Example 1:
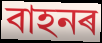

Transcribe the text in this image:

বাহনৰ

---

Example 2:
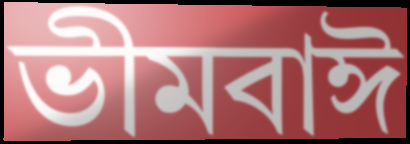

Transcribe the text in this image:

ভীমবাঈ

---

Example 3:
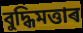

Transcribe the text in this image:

বুদ্ধিমত্তাৰ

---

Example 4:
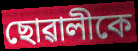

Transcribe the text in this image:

ছোৱালীকে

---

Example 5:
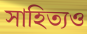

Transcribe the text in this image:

সাহিত্যও